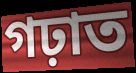
গঢ়াত